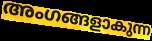
അംഗങ്ങളാകുന്ന